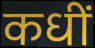
कधीं